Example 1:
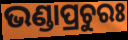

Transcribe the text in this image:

ଭଣ୍ଡାପ୍ରଚୁରଃ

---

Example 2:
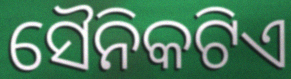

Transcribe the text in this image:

ସୈନିକଟିଏ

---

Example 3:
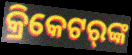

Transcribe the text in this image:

କ୍ରିକେଟର୍‌ଙ୍କ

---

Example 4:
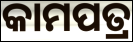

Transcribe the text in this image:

କାମପତ୍ର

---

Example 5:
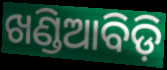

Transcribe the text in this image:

ଖଣ୍ଡିଆବିଡ଼ି